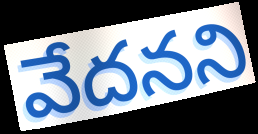
వేదనని